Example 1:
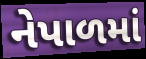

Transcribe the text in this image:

નેપાળમાં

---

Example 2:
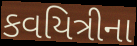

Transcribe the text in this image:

કવયિત્રીના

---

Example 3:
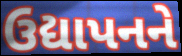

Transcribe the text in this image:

ઉદ્યાપનને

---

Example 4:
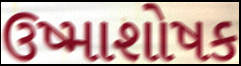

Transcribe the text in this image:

ઉષ્માશોષક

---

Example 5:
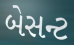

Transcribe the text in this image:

બેસન્ટ